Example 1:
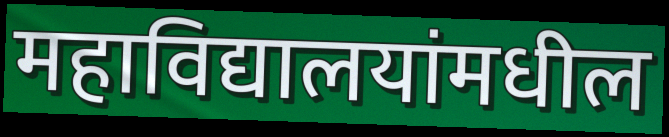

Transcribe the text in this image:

महाविद्यालयांमधील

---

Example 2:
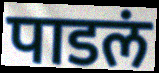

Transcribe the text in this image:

पाडलं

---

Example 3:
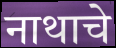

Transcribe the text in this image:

नाथाचे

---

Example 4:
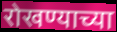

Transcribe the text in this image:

रोखण्याच्या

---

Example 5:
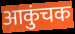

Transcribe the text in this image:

आकुंचक